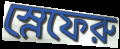
স্নেফেরু